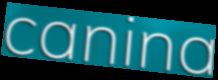
canina